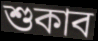
শুকাব